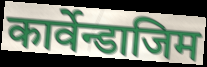
कार्वेन्डाजिम